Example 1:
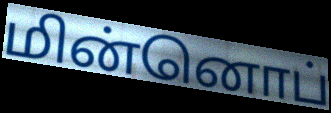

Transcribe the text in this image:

மின்னொப்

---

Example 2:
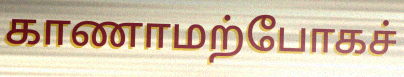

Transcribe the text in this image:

காணாமற்போகச்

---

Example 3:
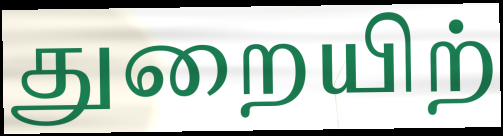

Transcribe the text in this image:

துறையிற்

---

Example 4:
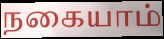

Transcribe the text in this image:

நகையாம்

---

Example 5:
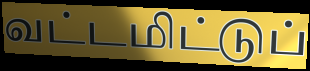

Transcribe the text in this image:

வட்டமிட்டுப்